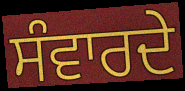
ਸੰਵਾਰਦੇ